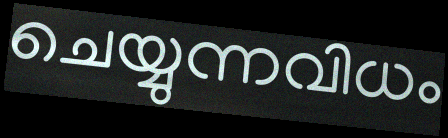
ചെയ്യുന്നവിധം